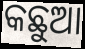
କଛୁଆ